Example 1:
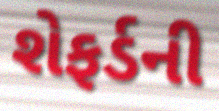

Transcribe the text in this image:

શેફર્ડની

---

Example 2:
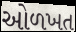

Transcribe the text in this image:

ઓળખત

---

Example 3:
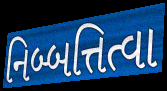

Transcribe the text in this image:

નિબ્બત્તિત્વા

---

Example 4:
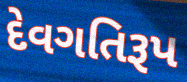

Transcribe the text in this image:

દેવગતિરૂપ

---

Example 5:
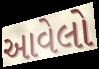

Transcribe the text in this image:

આવેલો